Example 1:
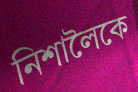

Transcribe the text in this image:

নিশালৈকে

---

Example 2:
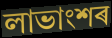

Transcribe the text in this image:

লাভাংশৰ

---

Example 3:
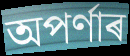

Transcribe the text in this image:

অপৰ্ণাৰ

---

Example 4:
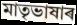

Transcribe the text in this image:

মাতৃভাষাৰ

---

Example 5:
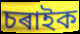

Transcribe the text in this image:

চৰাইক